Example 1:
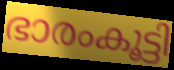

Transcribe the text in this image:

ഭാരംകൂട്ടി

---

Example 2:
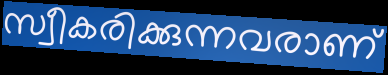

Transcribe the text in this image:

സ്വീകരിക്കുന്നവരാണ്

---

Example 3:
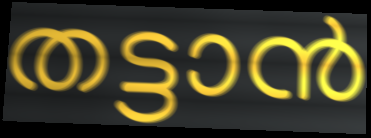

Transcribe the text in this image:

തട്ടാൻ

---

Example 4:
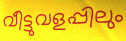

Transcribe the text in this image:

വീട്ടുവളപ്പിലും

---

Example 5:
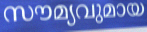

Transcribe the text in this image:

സൗമ്യവുമായ